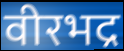
वीरभद्र